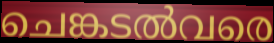
ചെങ്കടൽവരെ